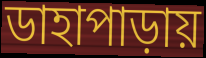
ডাহাপাড়ায়